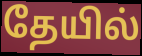
தேயில்